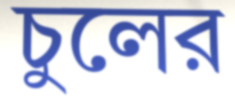
চুলের